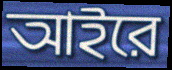
আইরে